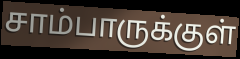
சாம்பாருக்குள்